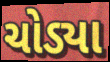
ચોડ્યા